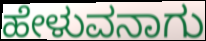
ಹೇಳುವನಾಗು